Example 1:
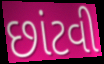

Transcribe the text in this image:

છાંટવી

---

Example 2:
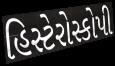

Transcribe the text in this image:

હિસ્ટેરોસ્કોપી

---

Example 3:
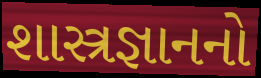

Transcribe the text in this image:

શાસ્ત્રજ્ઞાનનો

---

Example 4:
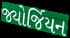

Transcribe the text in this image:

જ્યોર્જિયન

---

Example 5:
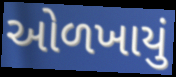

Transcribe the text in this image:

ઓળખાયું